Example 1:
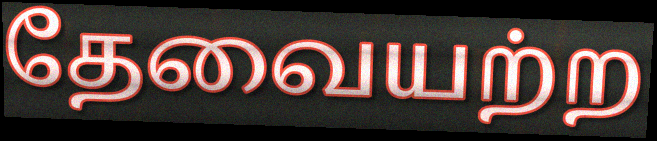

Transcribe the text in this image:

தேவையற்ற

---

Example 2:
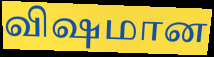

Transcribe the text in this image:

விஷமான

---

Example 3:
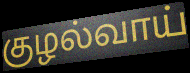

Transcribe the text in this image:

குழல்வாய்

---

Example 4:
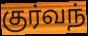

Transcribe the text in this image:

குர்வந்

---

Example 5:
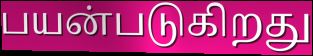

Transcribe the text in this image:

பயன்படுகிறது